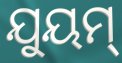
ଯୁୟମ୍